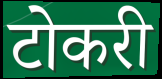
टोकरी